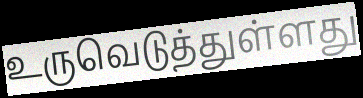
உருவெடுத்துள்ளது